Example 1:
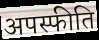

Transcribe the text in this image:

अपस्फीति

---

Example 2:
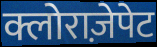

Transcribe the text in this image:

क्लोराज़ेपेट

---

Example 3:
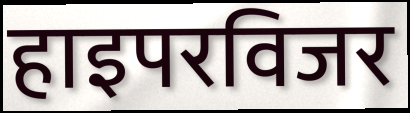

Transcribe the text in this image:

हाइपरविजर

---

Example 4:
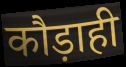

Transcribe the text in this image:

कौड़ाही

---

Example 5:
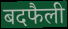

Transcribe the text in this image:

बदफैली